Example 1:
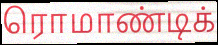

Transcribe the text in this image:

ரொமாண்டிக்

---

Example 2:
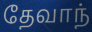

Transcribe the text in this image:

தேவாந்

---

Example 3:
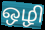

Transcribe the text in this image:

ஒழி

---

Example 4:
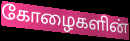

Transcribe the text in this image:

கோழைகளின்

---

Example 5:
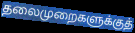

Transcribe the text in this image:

தலைமுறைகளுக்குத்